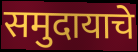
समुदायाचे